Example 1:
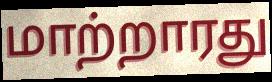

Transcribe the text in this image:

மாற்றாரது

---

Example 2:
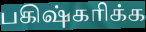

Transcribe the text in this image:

பகிஷ்கரிக்க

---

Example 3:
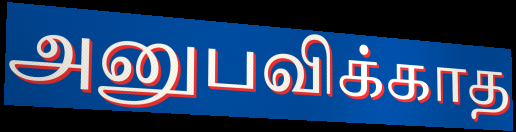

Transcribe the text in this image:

அனுபவிக்காத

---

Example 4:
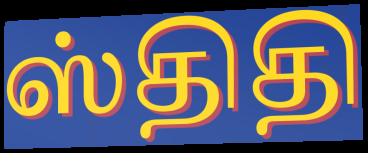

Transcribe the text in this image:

ஸ்திதி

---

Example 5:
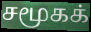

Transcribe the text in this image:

சமூகக்